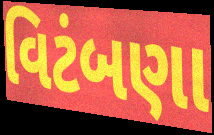
વિટંબણા